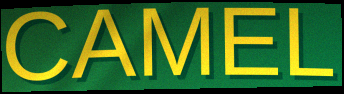
CAMEL